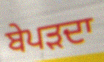
ਬੇਪੜਦਾ